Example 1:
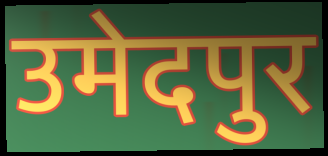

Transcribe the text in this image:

उमेदपुर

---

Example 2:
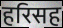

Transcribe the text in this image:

हरिसह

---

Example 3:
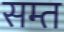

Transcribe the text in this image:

सम्त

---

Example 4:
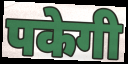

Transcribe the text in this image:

पकेगी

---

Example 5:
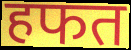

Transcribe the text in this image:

हफत